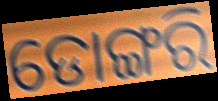
ଡୋଙ୍ଗରି